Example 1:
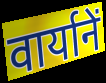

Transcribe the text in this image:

वार्यानें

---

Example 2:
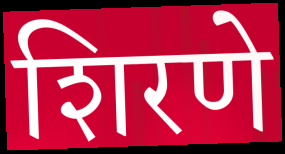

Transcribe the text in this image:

शिरणे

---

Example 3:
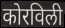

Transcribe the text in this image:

कोरविली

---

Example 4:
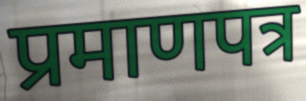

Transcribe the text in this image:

प्रमाणपत्र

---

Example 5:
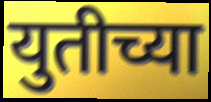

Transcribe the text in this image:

युतीच्या